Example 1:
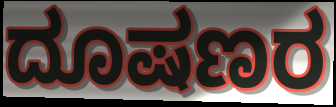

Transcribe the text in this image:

ದೂಷಣರ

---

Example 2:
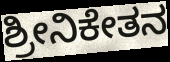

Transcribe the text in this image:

ಶ್ರೀನಿಕೇತನ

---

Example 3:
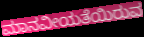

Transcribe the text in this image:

ಮಾನವೀಯತೆಯಿರುವ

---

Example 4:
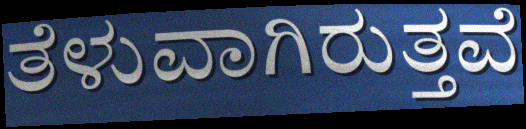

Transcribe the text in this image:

ತೆಳುವಾಗಿರುತ್ತವೆ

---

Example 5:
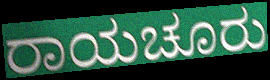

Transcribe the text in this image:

ರಾಯಚೂರು